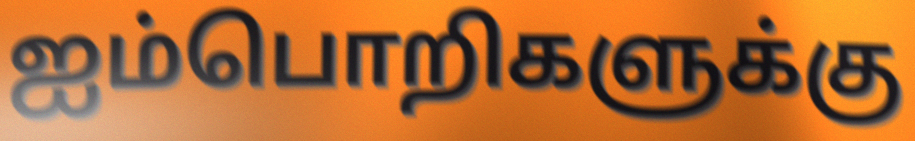
ஐம்பொறிகளுக்கு